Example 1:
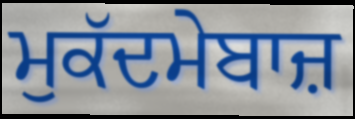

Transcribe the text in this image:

ਮੁਕੱਦਮੇਬਾਜ਼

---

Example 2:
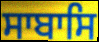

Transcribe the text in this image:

ਸਾਬਾਸਿ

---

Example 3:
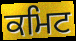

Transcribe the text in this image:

ਕਮਿਟ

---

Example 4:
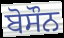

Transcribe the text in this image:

ਬੋਸੌਨ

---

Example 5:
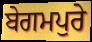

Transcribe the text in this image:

ਬੇਗਮਪੁਰੇ